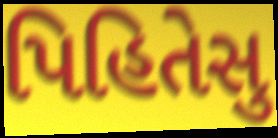
પિહિતેસુ